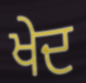
ਖੇਦ